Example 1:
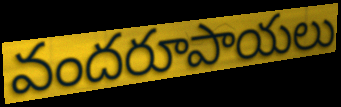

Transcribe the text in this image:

వందరూపాయలు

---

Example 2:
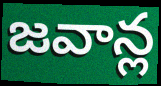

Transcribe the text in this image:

జవాన్ల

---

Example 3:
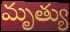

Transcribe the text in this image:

మృత్యు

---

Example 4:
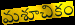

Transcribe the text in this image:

మశూచికం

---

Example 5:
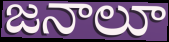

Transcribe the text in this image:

జనాలూ